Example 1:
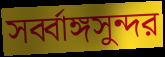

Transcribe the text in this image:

সর্ব্বাঙ্গসুন্দর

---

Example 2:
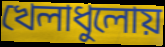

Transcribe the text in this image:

খেলাধুলোয়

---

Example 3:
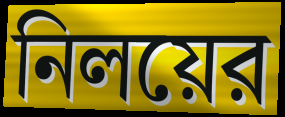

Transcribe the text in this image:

নিলয়ের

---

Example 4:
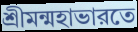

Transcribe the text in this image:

শ্রীমন্মহাভারতে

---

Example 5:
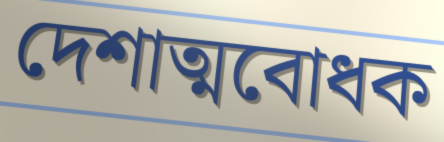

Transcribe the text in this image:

দেশাত্মবোধক